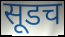
सूडच